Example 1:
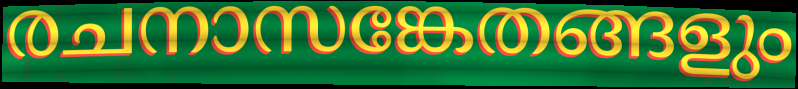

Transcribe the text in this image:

രചനാസങ്കേതങ്ങളും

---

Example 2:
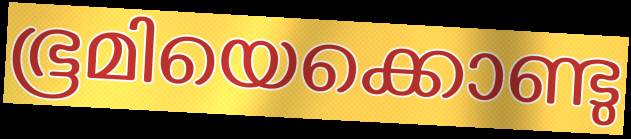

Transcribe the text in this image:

ഭൂമിയെക്കൊണ്ടു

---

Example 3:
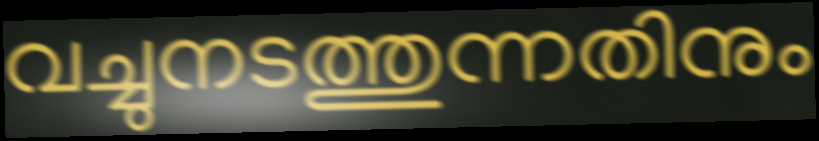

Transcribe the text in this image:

വച്ചുനടത്തുന്നതിനും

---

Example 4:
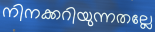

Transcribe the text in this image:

നിനക്കറിയുന്നതല്ലേ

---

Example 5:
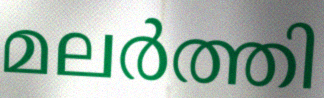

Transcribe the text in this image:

മലർത്തി